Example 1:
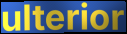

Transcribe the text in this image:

ulterior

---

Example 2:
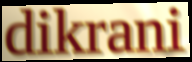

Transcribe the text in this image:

dikrani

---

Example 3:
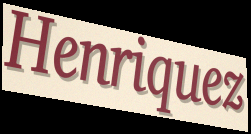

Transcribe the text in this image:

Henriquez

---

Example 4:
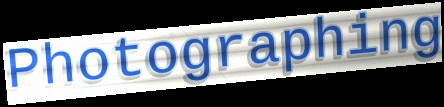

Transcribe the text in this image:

Photographing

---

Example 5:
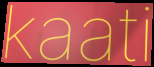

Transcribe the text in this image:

kaati